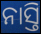
ନାସ୍ତି